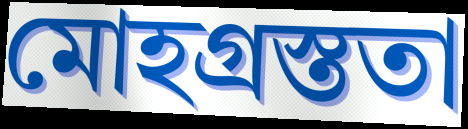
মোহগ্রস্ততা